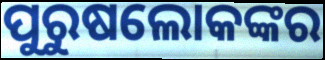
ପୁରୁଷଲୋକଙ୍କର